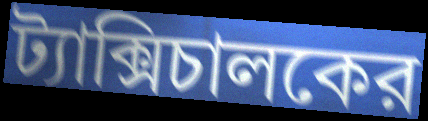
ট্যাক্সিচালকের